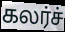
கலர்ச்